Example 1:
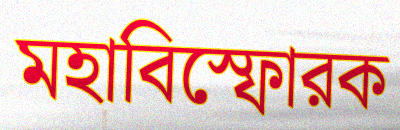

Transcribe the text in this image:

মহাবিস্ফোরক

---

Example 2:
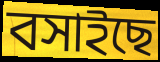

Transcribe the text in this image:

বসাইছে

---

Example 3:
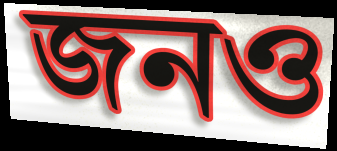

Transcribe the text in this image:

জনও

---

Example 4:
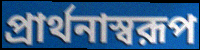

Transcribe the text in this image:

প্রার্থনাস্বরূপ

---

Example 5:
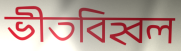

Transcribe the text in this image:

ভীতবিহ্বল